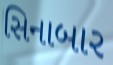
સિનાબાર